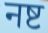
नष्ट